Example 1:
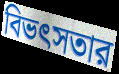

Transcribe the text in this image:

বিভৎসতার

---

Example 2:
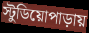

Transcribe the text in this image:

স্টুডিয়োপাড়ায়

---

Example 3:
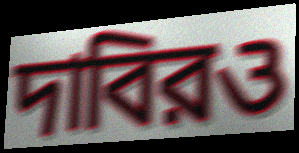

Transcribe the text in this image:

দাবিরও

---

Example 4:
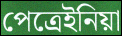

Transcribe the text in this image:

পেত্রেইনিয়া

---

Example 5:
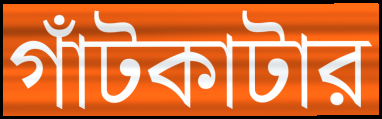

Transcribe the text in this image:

গাঁটকাটার